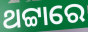
ଥଟ୍ଟାରେ